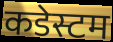
कडेस्टम